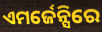
ଏମର୍ଜେନ୍ସିରେ